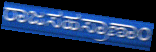
ರಾಜಸಹಸ್ರಾಣಾಂ